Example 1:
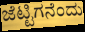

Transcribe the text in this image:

ಜೆಟ್ಟಿಗನೆಂದು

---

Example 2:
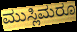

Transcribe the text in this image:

ಮುಸ್ಲಿಮರೂ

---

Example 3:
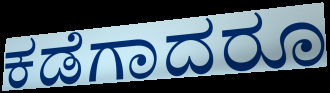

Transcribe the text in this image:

ಕಡೆಗಾದರೂ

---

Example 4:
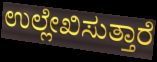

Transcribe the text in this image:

ಉಲ್ಲೇಖಿಸುತ್ತಾರೆ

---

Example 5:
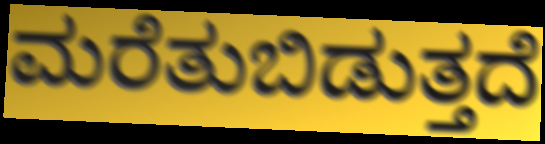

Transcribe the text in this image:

ಮರೆತುಬಿಡುತ್ತದೆ